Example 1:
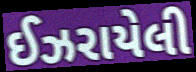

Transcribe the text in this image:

ઈઝરાયેલી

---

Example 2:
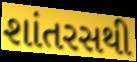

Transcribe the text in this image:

શાંતરસથી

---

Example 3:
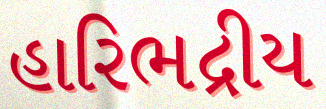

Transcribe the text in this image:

હારિભદ્રીય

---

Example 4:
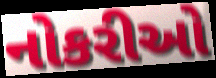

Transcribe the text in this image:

નોકરીઓ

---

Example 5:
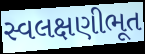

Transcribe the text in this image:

સ્વલક્ષણીભૂત